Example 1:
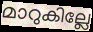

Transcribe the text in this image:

മാറുകില്ലേ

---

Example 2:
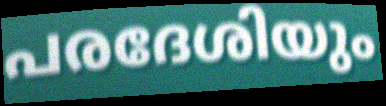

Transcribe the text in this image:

പരദേശിയും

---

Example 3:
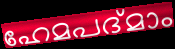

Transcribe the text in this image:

ഹേമപദ്മാം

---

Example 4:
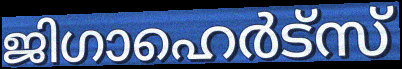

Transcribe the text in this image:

ജിഗാഹെർട്സ്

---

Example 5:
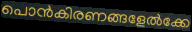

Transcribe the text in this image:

പൊൻകിരണങ്ങളേൽക്കേ